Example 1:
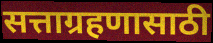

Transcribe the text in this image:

सत्ताग्रहणासाठी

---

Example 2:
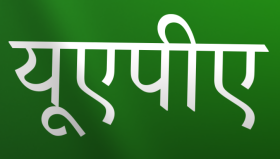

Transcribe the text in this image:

यूएपीए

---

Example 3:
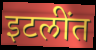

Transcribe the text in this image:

इटलींत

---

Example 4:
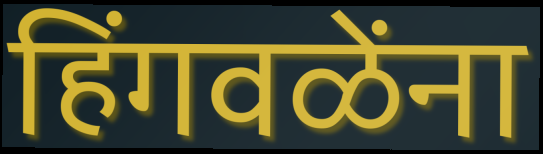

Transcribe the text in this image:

हिंगवळेंना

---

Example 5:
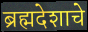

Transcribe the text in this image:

ब्रह्मदेशाचे